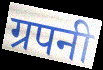
ग्रपनी